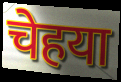
चेहया